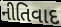
નીતિવાદ